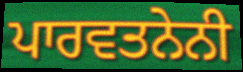
ਪਾਰਵਤਨੇਨੀ